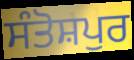
ਸੰਤੋਸ਼ਪੁਰ